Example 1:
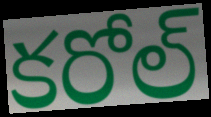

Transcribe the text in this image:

కరోల్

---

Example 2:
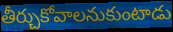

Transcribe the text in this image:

తీర్చుకోవాలనుకుంటాడు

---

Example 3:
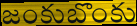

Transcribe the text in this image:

జంకుబొంకు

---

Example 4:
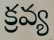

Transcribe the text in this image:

క్రవ్య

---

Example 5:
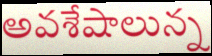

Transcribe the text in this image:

అవశేషాలున్న